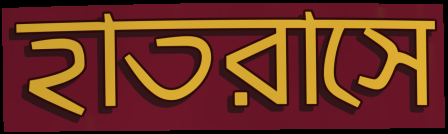
হাতরাসে